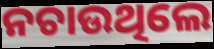
ନଚାଉଥିଲେ